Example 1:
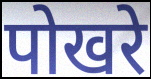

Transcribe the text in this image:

पोखरे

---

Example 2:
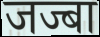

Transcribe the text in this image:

जज्बा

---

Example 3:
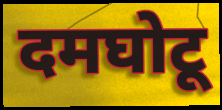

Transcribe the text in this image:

दमघोटू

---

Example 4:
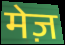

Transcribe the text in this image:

मेज़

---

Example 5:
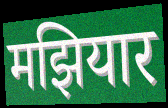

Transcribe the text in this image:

मझियार